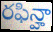
రఫిన్హా